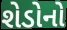
શેડોનો